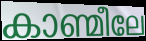
കാണ്മീലേ